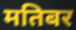
मतिबर